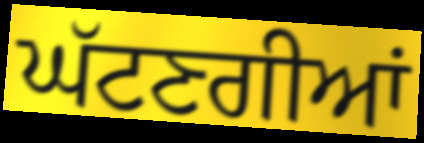
ਘੱਟਣਗੀਆਂ